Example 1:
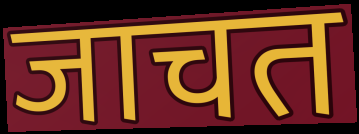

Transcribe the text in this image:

जाचत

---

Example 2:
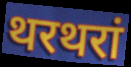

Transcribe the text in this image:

थरथरां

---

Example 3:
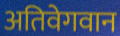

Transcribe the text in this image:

अतिवेगवान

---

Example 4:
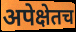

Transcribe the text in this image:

अपेक्षेतच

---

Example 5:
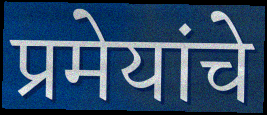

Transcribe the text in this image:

प्रमेयांचे